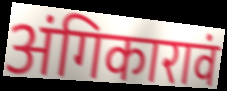
अंगिकारावं